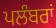
ਪਲੰਬਰਾਂ